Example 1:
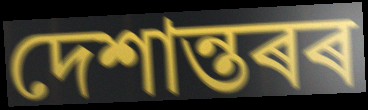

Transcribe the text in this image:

দেশান্তৰৰ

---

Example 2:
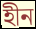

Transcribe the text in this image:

হীন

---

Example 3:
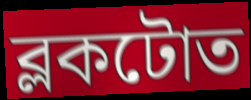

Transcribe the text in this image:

ব্লকটোত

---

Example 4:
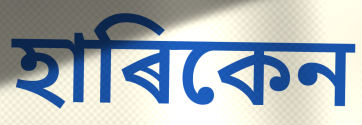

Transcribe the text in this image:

হাৰিকেন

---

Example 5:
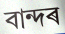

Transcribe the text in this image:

বান্দৰ